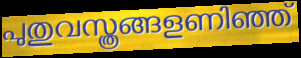
പുതുവസ്ത്രങ്ങളണിഞ്ഞ്